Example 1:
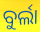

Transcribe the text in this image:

ବୁର୍ଲା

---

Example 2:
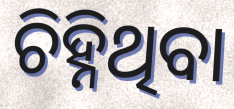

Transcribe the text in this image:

ଚିହ୍ନିଥିବା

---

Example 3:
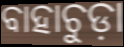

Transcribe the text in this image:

ବାହାଚୁଡ଼ା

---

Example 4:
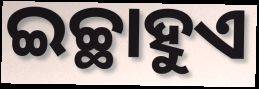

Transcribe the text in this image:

ଇଚ୍ଛାହୁଏ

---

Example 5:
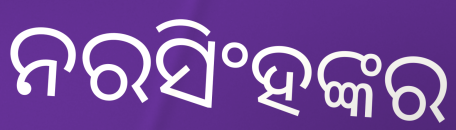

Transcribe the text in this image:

ନରସିଂହଙ୍କର